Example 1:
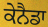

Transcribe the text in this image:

ਕੇਨੈਡਾ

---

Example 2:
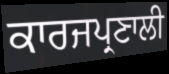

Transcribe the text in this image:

ਕਾਰਜਪ੍ਰਣਾਲੀ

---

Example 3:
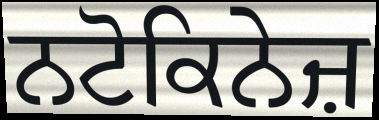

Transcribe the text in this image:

ਨਟੋਕਿਨੇਜ਼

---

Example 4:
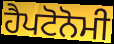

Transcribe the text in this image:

ਹੈਪਟੋਨੋਮੀ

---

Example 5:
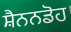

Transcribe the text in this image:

ਸ਼ੈਨਨਡੋਹ